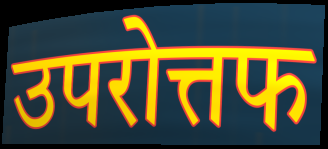
उपरोत्तफ